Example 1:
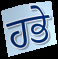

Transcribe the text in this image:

ਹਭੇ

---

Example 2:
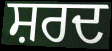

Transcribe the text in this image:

ਸ਼ਰਦ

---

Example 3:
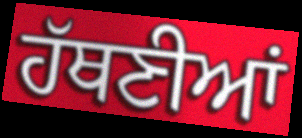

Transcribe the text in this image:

ਹੱਥਣੀਆਂ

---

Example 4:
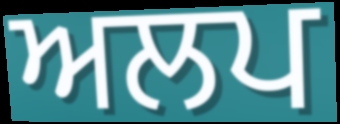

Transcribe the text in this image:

ਅਲਪ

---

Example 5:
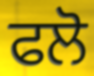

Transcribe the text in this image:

ਫਲੋ